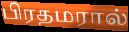
பிரதமரால்